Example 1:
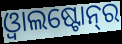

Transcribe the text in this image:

ଓ୍ୱାଲଷ୍ଟୋନ୍‌ର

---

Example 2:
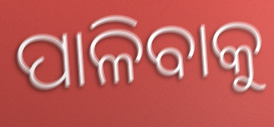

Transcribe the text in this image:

ପାଳିବାକୁ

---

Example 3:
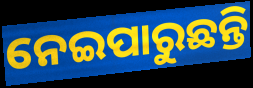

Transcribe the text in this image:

ନେଇପାରୁଛନ୍ତି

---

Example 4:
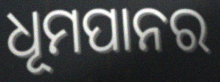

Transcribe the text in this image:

ଧୂମପାନର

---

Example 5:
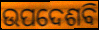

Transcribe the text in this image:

ଉପଦେଶବି